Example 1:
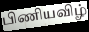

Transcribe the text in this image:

பிணியவிழ்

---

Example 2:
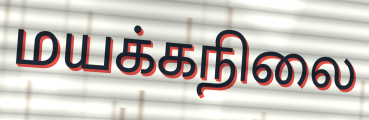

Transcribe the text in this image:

மயக்கநிலை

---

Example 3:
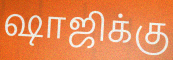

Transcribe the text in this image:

ஷாஜிக்கு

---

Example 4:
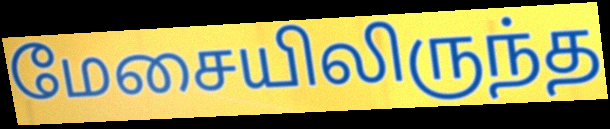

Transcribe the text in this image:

மேசையிலிருந்த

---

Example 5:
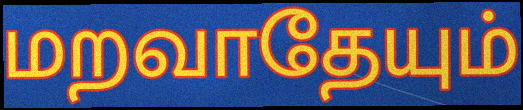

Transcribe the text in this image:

மறவாதேயும்